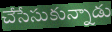
చేసేసుకున్నాడు